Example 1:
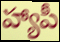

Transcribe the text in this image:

హ్యాపీ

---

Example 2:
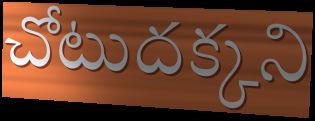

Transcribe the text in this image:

చోటుదక్కని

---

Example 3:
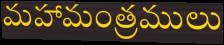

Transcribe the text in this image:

మహామంత్రములు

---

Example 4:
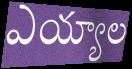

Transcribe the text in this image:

ఎయ్యాల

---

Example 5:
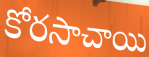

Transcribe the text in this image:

కోరసాచాయి